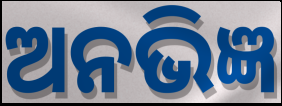
ଅନଭିଜ୍ଞ